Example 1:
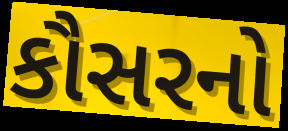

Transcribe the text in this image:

કૌસરનો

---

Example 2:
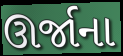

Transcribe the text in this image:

ઊર્જાના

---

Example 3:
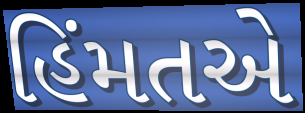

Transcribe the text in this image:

હિંમતએ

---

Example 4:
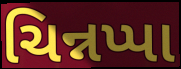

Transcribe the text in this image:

ચિન્નપ્પા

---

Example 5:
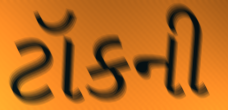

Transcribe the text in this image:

ટૉકની